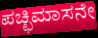
ಪಚ್ಛಿಮಾಸನೇ